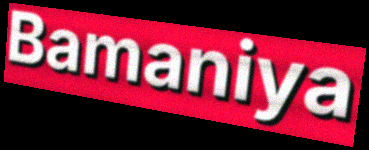
Bamaniya